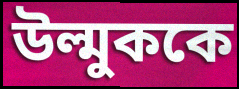
উল্মুককে